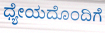
ಧ್ಯೇಯದೊಂದಿಗೆ